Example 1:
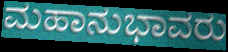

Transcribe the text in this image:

ಮಹಾನುಭಾವರು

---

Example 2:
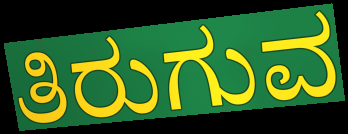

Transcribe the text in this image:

ತಿರುಗುವ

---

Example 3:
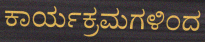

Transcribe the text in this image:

ಕಾರ್ಯಕ್ರಮಗಳಿಂದ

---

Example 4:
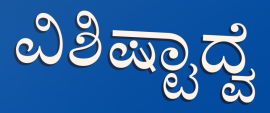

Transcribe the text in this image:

ವಿಶಿಷ್ಟಾದ್ವೆ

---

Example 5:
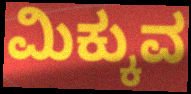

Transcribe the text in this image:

ಮಿಕ್ಕುವ